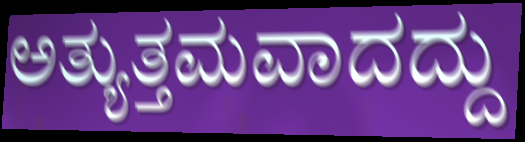
ಅತ್ಯುತ್ತಮವಾದದ್ದು